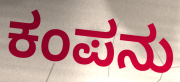
ಕಂಪನು